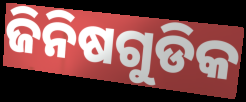
ଜିନିଷଗୁଡିକ